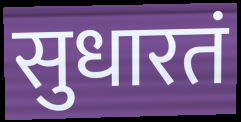
सुधारतं